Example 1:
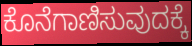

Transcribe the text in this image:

ಕೊನೆಗಾಣಿಸುವುದಕ್ಕೆ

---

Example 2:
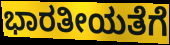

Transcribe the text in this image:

ಭಾರತೀಯತೆಗೆ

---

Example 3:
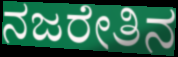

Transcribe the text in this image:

ನಜರೇತಿನ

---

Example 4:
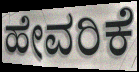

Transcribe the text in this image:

ಹೇವರಿಕೆ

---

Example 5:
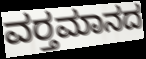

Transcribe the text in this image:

ವರ‍್ತಮಾನದ